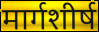
मार्गशीर्ष